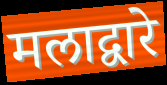
मलाद्वारे